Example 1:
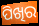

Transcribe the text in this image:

ପିଖିର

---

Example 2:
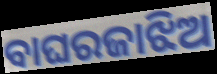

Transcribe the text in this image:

ବାଘରଜାଝିଅ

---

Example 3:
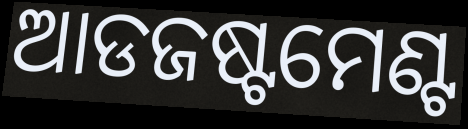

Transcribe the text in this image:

ଆଡଜଷ୍ଟମେଣ୍ଟ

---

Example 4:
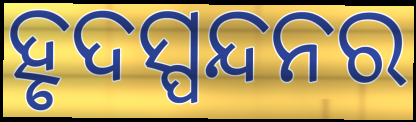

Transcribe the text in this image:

ହୃଦସ୍ପନ୍ଦନର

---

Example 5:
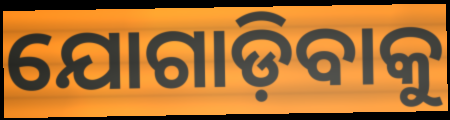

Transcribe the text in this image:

ଯୋଗାଡ଼ିବାକୁ